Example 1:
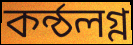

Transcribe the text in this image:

কন্ঠলগ্ন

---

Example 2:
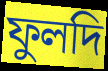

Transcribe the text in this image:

ফুলদি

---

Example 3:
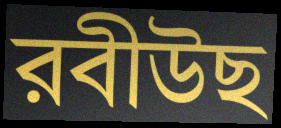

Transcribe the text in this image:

রবীউছ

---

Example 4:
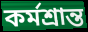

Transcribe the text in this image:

কর্মশ্রান্ত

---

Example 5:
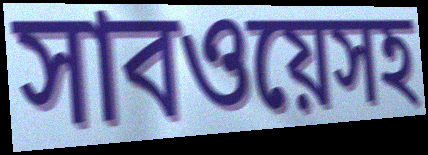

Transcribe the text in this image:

সাবওয়েসহ